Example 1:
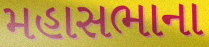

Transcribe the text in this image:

મહાસભાના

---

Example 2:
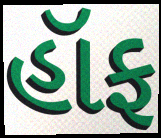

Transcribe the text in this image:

હૉફ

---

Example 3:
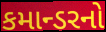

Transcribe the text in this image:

કમાન્ડરનો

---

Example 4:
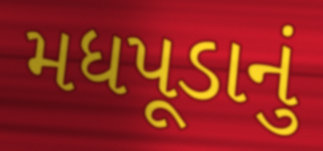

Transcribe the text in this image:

મધપૂડાનું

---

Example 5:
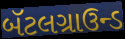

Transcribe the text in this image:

બૅટલગ્રાઉન્ડ